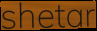
shetar